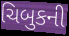
ચિબુકની